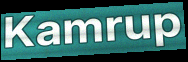
Kamrup